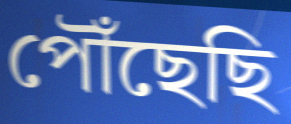
পৌঁছেছি